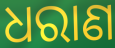
ଧରାଣ